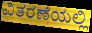
ವಿತರಣೆಯಲ್ಲಿ